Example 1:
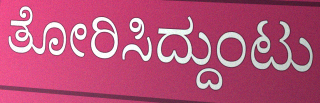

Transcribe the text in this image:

ತೋರಿಸಿದ್ದುಂಟು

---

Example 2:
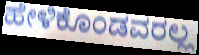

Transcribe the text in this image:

ಹೇಳಿಕೊಂಡವರಲ್ಲ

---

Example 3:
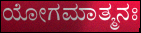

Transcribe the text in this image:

ಯೋಗಮಾತ್ಮನಃ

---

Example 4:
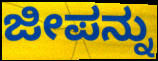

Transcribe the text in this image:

ಜೀಪನ್ನು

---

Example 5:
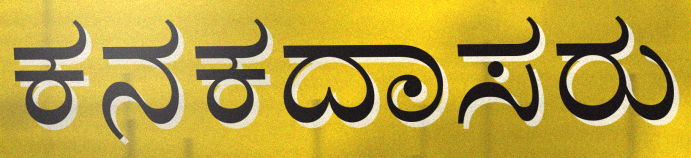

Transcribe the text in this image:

ಕನಕದಾಸರು